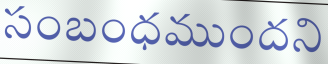
సంబంధముందని